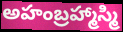
అహంబ్రహ్మాస్మి